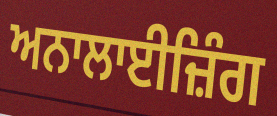
ਅਨਾਲਾਈਜ਼ਿੰਗ